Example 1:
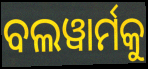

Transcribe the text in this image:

ବଲୱାର୍ମକୁ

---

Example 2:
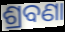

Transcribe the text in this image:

ଶ୍ରବଣା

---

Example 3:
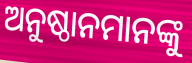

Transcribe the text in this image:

ଅନୁଷ୍ଠାନମାନଙ୍କୁ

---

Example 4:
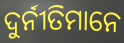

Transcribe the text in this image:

ଦୁର୍ନୀତିମାନେ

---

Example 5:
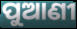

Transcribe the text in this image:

ପୁଆଣୀ